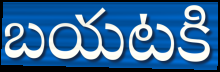
బయటకి